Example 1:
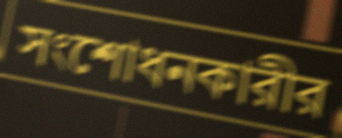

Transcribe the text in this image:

সংশোধনকারীর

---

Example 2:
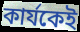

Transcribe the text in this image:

কার্যকেই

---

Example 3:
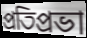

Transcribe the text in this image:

প্রতিপ্রভা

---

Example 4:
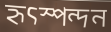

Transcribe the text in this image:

হৃৎস্পন্দন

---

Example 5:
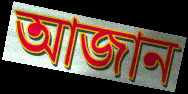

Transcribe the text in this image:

আজান